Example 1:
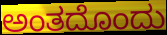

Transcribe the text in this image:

ಅಂತದೊಂದು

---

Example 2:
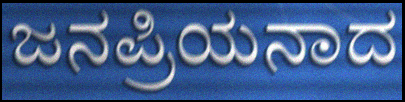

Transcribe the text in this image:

ಜನಪ್ರಿಯನಾದ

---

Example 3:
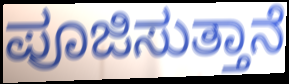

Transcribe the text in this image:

ಪೂಜಿಸುತ್ತಾನೆ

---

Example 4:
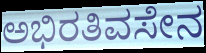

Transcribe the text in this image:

ಅಭಿರತಿವಸೇನ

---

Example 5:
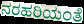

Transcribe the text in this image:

ನರಹರಿಯಂತೆ